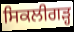
ਸਿਕਲੀਗੜ੍ਹ